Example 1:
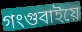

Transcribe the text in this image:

গংগুবাইয়ে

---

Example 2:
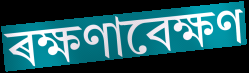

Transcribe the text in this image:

ৰক্ষণাবেক্ষণ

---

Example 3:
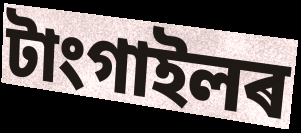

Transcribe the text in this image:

টাংগাইলৰ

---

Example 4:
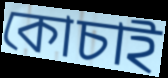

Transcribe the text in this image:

কোচাই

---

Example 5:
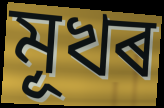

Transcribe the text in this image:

মূখৰ